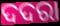
ଦଦରା